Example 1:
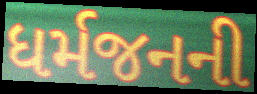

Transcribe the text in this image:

ધર્મજનની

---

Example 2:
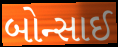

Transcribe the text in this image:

બોન્સાઈ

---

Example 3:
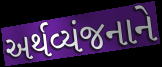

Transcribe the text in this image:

અર્થવ્યંજનાને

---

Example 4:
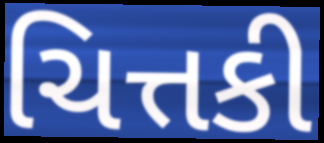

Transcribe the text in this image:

ચિત્તકી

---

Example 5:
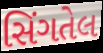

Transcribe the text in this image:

સિંગતેલ